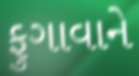
ફુગાવાને